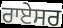
ਰਾਏਸਰ